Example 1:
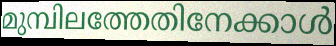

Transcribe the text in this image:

മുമ്പിലത്തേതിനേക്കാൾ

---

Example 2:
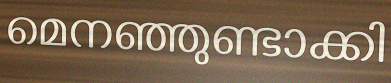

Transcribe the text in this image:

മെനഞ്ഞുണ്ടാക്കി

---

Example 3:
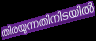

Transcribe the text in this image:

തിരയുന്നതിനിടയിൽ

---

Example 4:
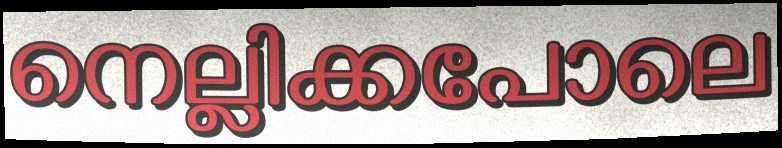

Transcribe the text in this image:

നെല്ലിക്കപോലെ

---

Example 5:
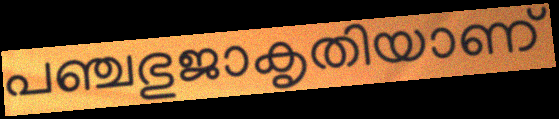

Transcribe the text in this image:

പഞ്ചഭുജാകൃതിയാണ്